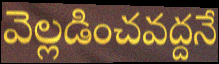
వెల్లడించవద్దనే